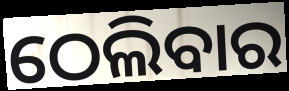
ଠେଲିବାର